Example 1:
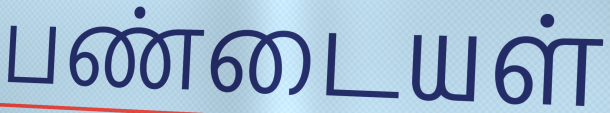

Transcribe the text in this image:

பண்டையள்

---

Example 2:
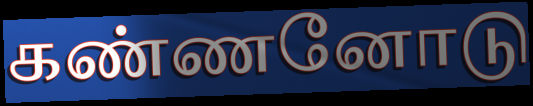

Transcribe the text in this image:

கண்ணனோடு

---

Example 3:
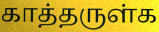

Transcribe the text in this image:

காத்தருள்க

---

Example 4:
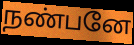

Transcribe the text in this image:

நண்பனே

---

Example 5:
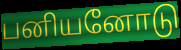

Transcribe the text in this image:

பனியனோடு